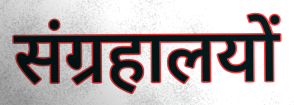
संग्रहालयों